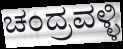
ಚಂದ್ರವಳ್ಳಿ